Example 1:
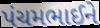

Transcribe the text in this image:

પંચમભાઈને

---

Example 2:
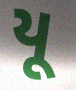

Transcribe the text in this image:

યૂ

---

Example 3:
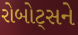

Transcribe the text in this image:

રોબોટ્સને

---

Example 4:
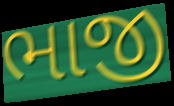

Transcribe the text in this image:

ભાજી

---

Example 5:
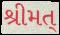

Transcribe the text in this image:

શ્રીમત્